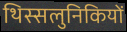
थिस्सलुनिकियों